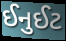
ઈનુઈટ